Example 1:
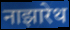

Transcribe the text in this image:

नाझारेथ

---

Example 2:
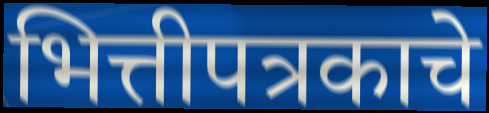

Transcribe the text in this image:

भित्तीपत्रकाचे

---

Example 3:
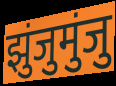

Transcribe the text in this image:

झुंजुमुंजु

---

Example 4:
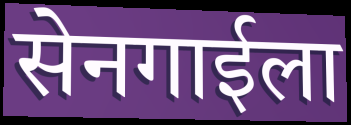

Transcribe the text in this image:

सेनगाईला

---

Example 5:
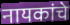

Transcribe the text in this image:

नायकांचे